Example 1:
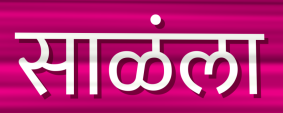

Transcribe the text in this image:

साळंला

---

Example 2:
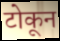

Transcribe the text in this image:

टोकून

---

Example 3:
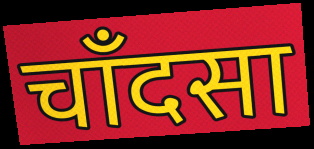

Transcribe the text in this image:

चाँदसा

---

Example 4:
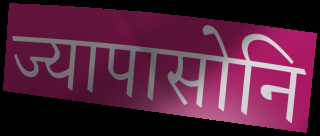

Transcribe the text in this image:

ज्यापासोनि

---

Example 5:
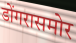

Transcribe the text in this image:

डोंगरासमोर